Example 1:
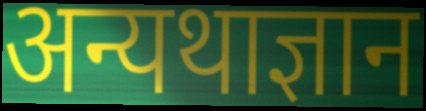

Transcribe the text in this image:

अन्यथाज्ञान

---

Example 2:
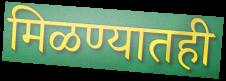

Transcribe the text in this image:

मिळण्यातही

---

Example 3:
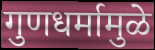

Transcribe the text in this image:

गुणधर्मामुळे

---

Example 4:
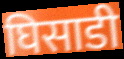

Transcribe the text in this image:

घिसाडी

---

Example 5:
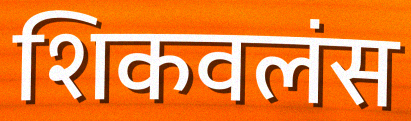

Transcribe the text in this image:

शिकवलंस